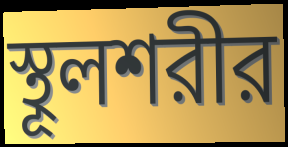
স্থূলশরীর